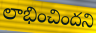
లాభించిందని